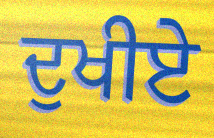
ਦੁਖੀਏ